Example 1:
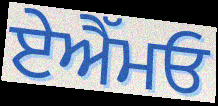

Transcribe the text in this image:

ਏਐੱਮਓ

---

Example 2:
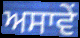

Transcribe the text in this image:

ਅਸਾਵੇਂ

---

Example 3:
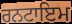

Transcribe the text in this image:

ਰਨਟਾਇਮ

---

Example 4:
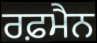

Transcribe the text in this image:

ਰਫ਼ਮੈਨ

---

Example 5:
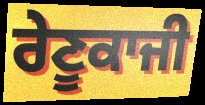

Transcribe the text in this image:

ਰੇਣੂਕਾਜੀ